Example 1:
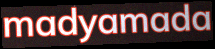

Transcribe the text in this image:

madyamada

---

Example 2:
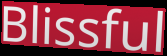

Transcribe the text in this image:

Blissful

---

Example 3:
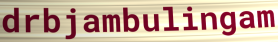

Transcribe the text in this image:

drbjambulingam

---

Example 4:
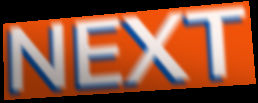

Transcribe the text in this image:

NEXT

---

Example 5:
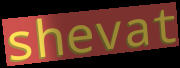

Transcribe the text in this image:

shevat